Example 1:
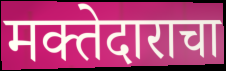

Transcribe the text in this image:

मक्तेदाराचा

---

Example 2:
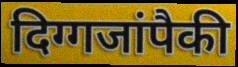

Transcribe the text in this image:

दिग्गजांपैकी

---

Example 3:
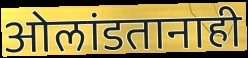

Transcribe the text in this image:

ओलांडतानाही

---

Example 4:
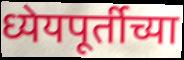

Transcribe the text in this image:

ध्येयपूर्तीच्या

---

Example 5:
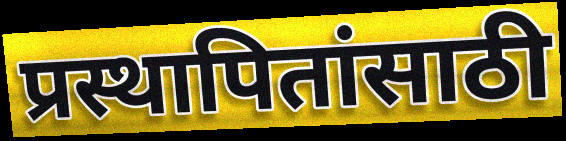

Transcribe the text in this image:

प्रस्थापितांसाठी